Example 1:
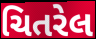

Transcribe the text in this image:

ચિતરેલ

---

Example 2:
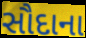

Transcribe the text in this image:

સૌદાના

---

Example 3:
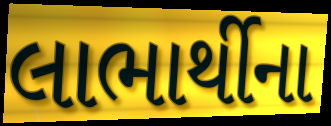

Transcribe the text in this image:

લાભાર્થીના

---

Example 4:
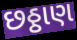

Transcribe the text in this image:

છઠ્ઠાણ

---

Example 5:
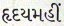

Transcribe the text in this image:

હૃદયમહીં